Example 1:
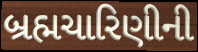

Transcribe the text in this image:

બ્રહ્મચારિણીની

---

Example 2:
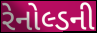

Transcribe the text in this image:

રેનોલ્ડની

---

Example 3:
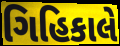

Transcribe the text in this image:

ગિહિકાલે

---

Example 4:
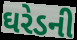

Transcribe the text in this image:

ઘરેડની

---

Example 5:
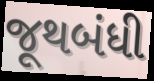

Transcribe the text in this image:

જૂથબંધી